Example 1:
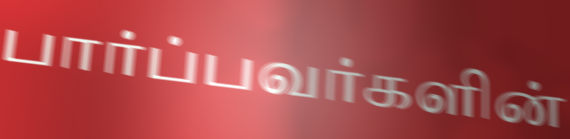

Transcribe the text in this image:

பார்ப்பவர்களின்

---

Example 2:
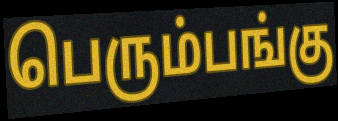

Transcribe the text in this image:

பெரும்பங்கு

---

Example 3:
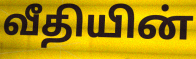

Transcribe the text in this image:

வீதியின்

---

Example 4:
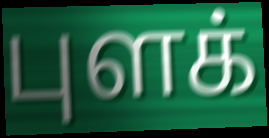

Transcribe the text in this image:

புளக்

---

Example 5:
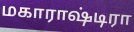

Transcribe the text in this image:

மகாராஷ்டிரா